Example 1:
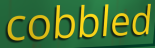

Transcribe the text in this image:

cobbled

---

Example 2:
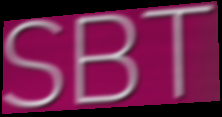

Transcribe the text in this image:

SBT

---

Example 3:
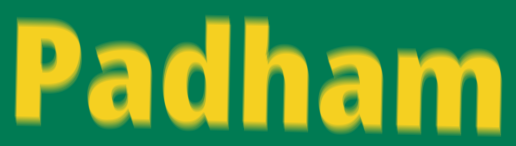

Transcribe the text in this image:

Padham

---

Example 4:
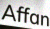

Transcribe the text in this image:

Affan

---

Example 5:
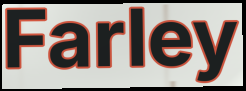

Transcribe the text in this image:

Farley